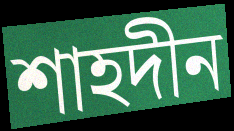
শাহদীন